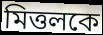
মিত্তলকে